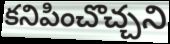
కనిపించొచ్చని